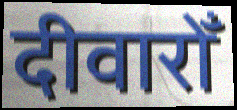
दीवारोँ